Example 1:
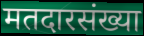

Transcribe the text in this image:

मतदारसंख्या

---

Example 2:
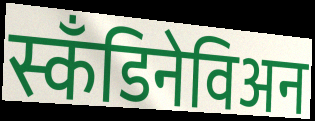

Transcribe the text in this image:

स्कॅंडिनेविअन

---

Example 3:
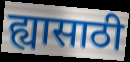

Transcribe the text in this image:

ह्यासाठी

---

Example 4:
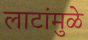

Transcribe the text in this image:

लाटांमुळे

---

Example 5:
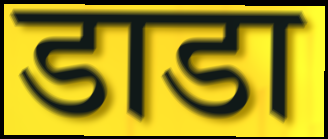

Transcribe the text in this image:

डाडा